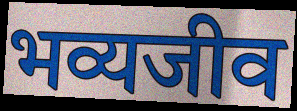
भव्यजीव